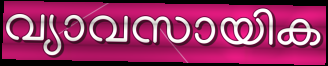
വ്യാവസായിക